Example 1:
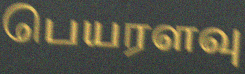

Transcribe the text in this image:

பெயரளவு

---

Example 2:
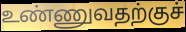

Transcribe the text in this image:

உண்ணுவதற்குச்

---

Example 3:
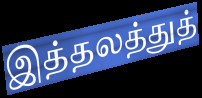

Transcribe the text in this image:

இத்தலத்துத்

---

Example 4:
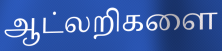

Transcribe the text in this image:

ஆட்லறிகளை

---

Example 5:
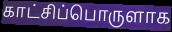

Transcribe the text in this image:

காட்சிப்பொருளாக